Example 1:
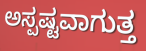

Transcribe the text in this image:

ಅಸ್ಪಷ್ಟವಾಗುತ್ತ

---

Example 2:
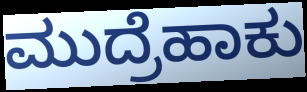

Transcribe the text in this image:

ಮುದ್ರೆಹಾಕು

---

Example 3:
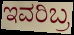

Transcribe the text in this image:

ಇವರಿಬ್ರ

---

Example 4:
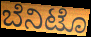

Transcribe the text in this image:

ಬೆನಿಟೊ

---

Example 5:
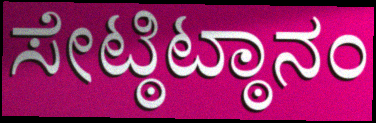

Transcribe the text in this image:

ಸೇಟ್ಠಿಟ್ಠಾನಂ